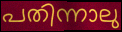
പതിന്നാലു